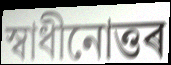
স্বাধীনোত্তৰ